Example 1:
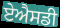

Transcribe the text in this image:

ਏਐਸਡੀ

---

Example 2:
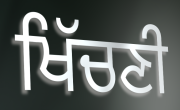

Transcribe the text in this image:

ਖਿੱਚਣੀ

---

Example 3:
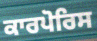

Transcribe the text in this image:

ਕਾਰਪੋਰਿਸ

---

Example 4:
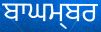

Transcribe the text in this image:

ਬਾਘਮ੍ਬਰ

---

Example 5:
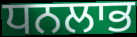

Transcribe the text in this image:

ਧਨਲਾਭ